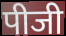
पीजी